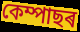
কেম্পাছৰ